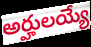
అర్హులయ్యే